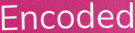
Encoded